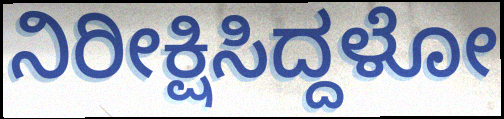
ನಿರೀಕ್ಷಿಸಿದ್ದಳೋ